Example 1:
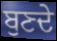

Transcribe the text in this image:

ਬੁਣਦੇ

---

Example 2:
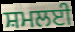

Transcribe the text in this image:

ਸ਼ਮਲਈ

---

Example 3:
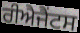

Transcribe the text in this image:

ਰੀਐਜੈਂਟਸ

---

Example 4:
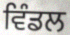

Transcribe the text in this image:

ਵਿੰਡਲ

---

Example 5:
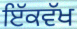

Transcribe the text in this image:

ਇੱਕਵੱਖ